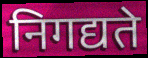
निगद्यते